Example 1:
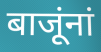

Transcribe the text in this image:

बाजूंनां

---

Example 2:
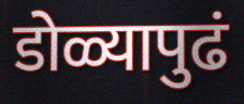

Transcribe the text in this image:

डोळ्यापुढं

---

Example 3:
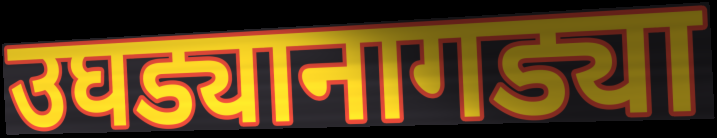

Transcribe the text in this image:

उघड्यानागड्या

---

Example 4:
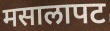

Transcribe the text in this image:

मसालापट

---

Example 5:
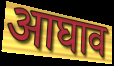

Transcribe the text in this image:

आघाव